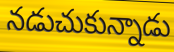
నడుచుకున్నాడు